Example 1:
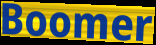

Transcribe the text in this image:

Boomer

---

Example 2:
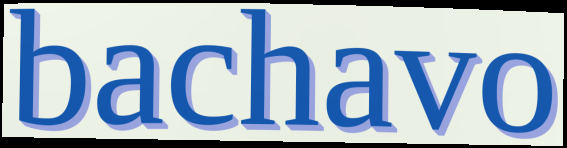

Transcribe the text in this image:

bachavo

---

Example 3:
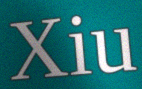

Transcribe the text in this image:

Xiu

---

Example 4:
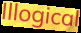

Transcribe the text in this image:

Illogical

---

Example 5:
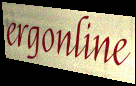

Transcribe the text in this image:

ergonline